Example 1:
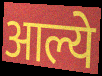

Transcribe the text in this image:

आल्ये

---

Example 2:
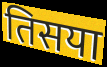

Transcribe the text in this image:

तिसया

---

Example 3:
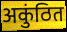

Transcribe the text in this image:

अकुंठित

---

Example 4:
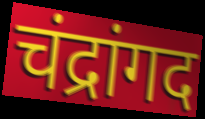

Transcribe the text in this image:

चंद्रांगद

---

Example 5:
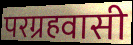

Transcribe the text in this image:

परग्रहवासी